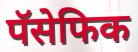
पॅसेफिक